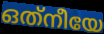
ഒത്‌നീയേ